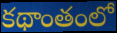
కథాంతంలో